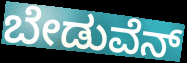
ಬೇಡುವೆನ್